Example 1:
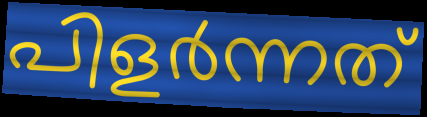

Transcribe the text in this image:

പിളർന്നത്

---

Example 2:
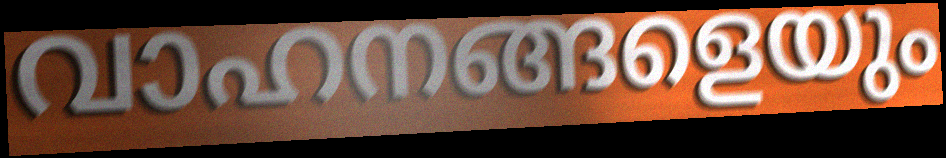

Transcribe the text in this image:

വാഹനങ്ങളെയും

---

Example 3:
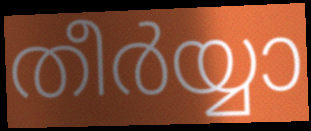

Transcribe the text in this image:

തീർയ്യാ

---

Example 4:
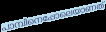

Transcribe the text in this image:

പാമ്പിനെപ്പോലെയാണത്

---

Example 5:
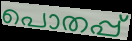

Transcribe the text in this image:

പൊതപ്പ്